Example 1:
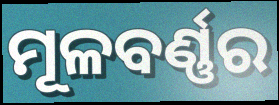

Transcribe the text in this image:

ମୂଳବର୍ଣ୍ଣର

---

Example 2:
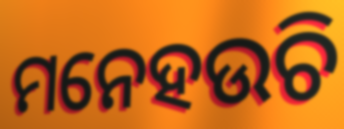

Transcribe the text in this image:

ମନେହଉଚି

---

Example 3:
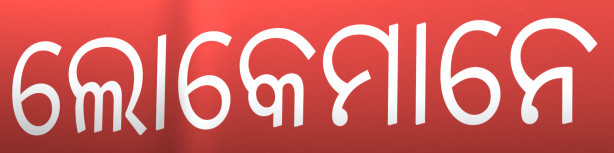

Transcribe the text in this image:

ଲୋକେମାନେ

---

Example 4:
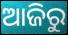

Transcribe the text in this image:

ଆଜିରୁ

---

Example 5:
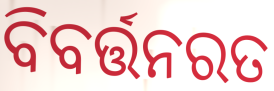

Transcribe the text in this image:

ବିବର୍ତ୍ତନରତ